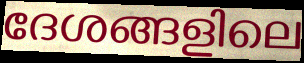
ദേശങ്ങളിലെ